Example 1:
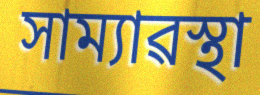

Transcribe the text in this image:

সাম্যাৱস্থা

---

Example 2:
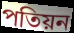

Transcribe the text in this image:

পতিয়ন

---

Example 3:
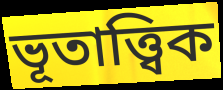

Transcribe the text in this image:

ভূতাত্ত্বিক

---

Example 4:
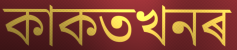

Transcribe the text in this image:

কাকতখনৰ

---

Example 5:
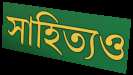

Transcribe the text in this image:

সাহিত্য়ও